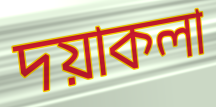
দয়াকলা